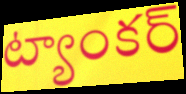
ట్యాంకర్